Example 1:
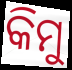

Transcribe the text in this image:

କିମୁ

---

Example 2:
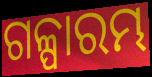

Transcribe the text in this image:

ଗଳ୍ପାରମ୍ଭ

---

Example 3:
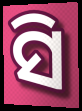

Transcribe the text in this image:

ସି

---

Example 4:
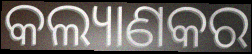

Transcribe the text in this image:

କଲ୍ୟାଣକର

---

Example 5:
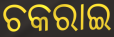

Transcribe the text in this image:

ଚକରାଇ